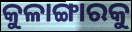
କୁଳାଙ୍ଗାରକୁ